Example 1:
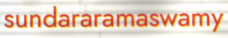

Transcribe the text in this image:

sundararamaswamy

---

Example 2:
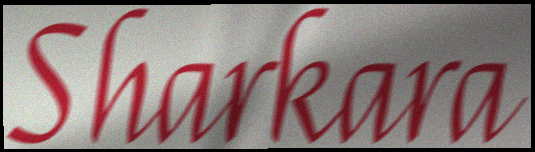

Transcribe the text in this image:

Sharkara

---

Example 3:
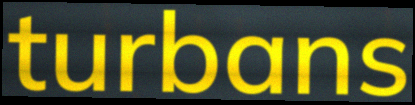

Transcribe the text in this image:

turbans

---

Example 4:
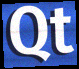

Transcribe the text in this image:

Qt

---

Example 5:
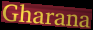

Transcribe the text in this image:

Gharana